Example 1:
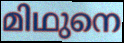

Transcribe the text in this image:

മിഥുനെ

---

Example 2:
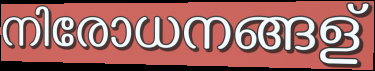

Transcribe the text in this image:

നിരോധനങ്ങള്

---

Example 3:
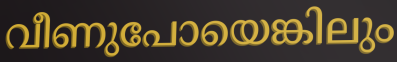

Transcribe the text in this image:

വീണുപോയെങ്കിലും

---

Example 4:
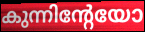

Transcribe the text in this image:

കുന്നിന്റേയോ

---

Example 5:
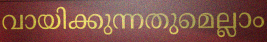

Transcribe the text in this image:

വായിക്കുന്നതുമെല്ലാം